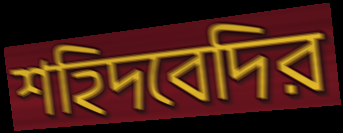
শহিদবেদির